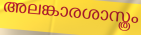
അലങ്കാരശാസ്ത്രം